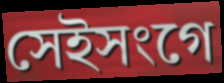
সেইসংগে